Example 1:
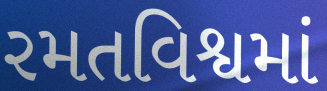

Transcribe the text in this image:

રમતવિશ્વમાં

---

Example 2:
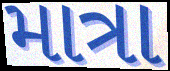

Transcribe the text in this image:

માત્રા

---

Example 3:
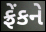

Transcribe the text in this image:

ફ્રેંકને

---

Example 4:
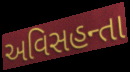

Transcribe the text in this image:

અવિસહન્તા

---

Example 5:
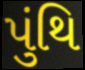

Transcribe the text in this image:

પુંથિ